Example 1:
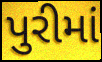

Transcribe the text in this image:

પુરીમાં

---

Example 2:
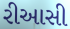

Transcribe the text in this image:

રીઆસી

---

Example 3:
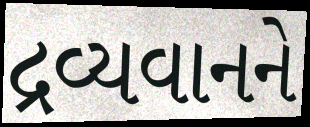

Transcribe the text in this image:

દ્રવ્યવાનને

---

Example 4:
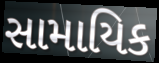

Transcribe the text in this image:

સામાયિક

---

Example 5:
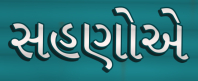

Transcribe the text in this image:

સહણોએ